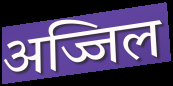
अज्जिल